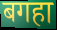
बगहा